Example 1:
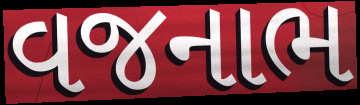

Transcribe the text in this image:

વજનાભ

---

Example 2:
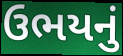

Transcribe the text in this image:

ઉભયનું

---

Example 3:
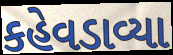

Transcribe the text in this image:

કહેવડાવ્યા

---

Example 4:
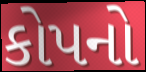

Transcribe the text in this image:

કોપનો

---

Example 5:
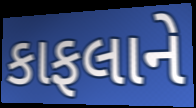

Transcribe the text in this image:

કાફલાને